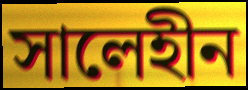
সালেহীন